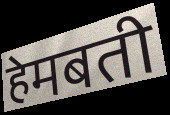
हेमबती